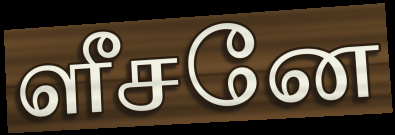
ளீசனே